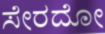
ಸೇರದೋ